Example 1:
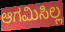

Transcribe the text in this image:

ಆಗಮಿಸಿಲ್ಲ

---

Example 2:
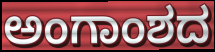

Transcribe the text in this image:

ಅಂಗಾಂಶದ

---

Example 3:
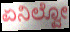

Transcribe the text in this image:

ಏನಿಲ್ವೋ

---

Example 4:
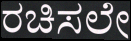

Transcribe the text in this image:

ರಚಿಸಲೇ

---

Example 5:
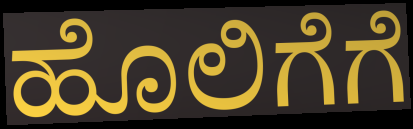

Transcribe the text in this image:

ಹೊಲಿಗೆಗೆ